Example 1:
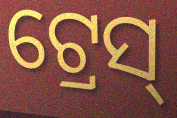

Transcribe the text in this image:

ଟ୍ରେସ୍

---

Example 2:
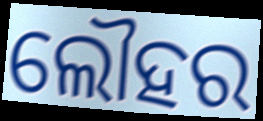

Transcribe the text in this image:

ଲୌହର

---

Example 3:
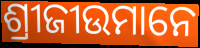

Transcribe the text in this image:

ଶ୍ରୀଜୀଉମାନେ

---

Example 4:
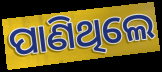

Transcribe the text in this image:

ପାଣିଥିଲେ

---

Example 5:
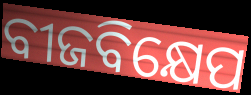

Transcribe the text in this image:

ବୀଜବିକ୍ଷେପ